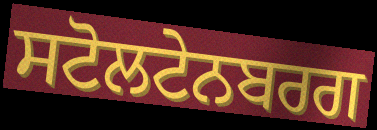
ਸਟੋਲਟੇਨਬਰਗ